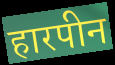
हारपीन